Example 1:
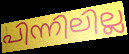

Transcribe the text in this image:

പിന്നിലില്ല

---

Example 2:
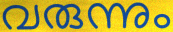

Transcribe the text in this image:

വരുന്നും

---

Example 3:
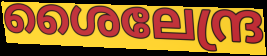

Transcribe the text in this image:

ശൈലേന്ദ്ര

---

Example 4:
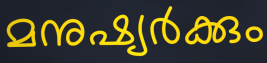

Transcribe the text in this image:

മനുഷ്യർക്കും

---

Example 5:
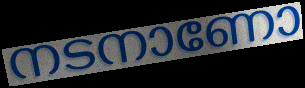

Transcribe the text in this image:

നടനാണോ